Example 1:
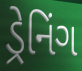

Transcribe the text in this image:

ડ્રેનિંગ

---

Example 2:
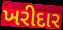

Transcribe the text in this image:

ખરીદાર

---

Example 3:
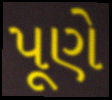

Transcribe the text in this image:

પૂણે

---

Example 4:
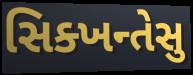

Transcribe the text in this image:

સિક્ખન્તેસુ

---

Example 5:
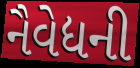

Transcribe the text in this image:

નૈવેદ્યની